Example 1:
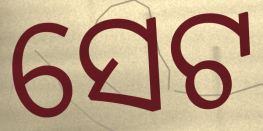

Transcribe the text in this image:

ସେଟ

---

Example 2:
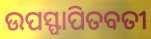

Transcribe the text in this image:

ଉପସ୍ଫାପିତବତୀ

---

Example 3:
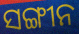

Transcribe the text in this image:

ସଙ୍ଗୀନ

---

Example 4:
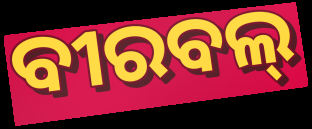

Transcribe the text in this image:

ବୀରବଲ୍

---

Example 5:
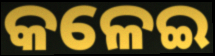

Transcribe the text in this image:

କଳେଇ